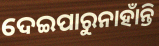
ଦେଇପାରୁନାହାଁନ୍ତି